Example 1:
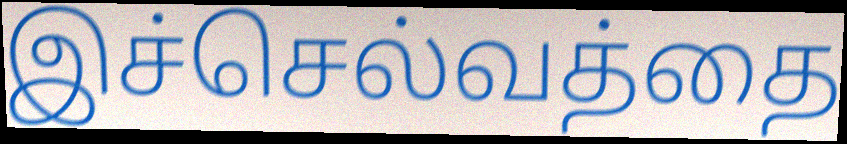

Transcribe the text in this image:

இச்செல்வத்தை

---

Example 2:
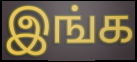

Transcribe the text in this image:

இங்க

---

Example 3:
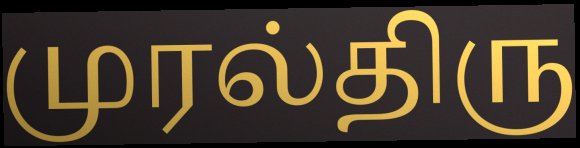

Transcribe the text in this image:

முரல்திரு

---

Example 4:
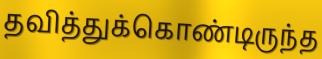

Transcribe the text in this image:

தவித்துக்கொண்டிருந்த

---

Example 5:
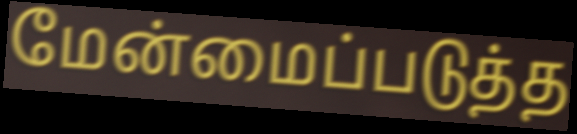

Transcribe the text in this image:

மேன்மைப்படுத்த